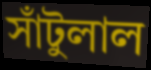
সাঁটুলাল